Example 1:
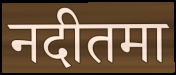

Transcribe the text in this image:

नदीतमा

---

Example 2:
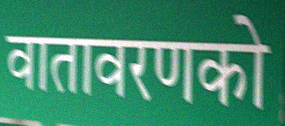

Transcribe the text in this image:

वातावरणको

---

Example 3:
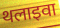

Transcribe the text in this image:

थलाइवा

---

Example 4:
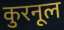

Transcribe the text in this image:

कुरनूल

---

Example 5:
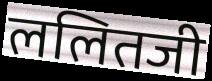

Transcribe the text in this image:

ललितजी